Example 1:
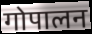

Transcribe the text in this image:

गोपालन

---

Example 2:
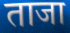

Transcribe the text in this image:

ताजा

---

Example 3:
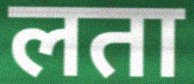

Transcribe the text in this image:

लता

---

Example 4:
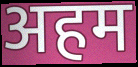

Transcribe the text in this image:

अहम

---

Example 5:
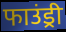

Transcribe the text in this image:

फाउंड्री